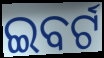
ଇବର୍ଟ